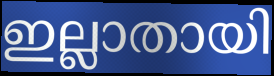
ഇല്ലാതായി